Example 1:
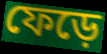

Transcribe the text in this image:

ফেড়ে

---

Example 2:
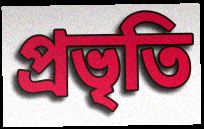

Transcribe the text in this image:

প্রভৃতি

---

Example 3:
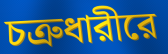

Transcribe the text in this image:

চত্রুধারীরে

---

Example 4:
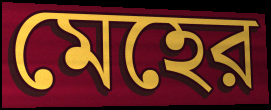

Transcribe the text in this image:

মেহের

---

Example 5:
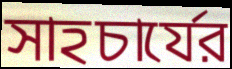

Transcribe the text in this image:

সাহচার্যের